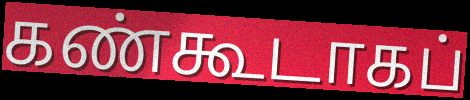
கண்கூடாகப்